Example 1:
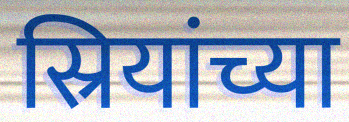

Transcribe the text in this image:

स्रियांच्या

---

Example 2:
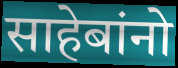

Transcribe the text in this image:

साहेबांनो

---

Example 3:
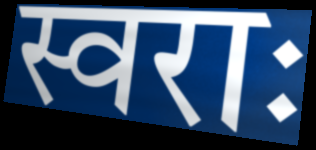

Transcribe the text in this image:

स्वराः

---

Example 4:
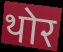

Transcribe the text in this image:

थोर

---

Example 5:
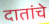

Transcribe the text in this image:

दातांचे